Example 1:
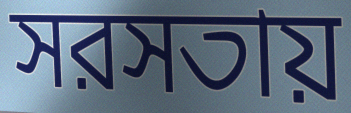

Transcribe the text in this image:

সরসতায়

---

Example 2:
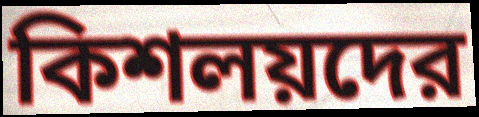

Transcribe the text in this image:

কিশলয়দের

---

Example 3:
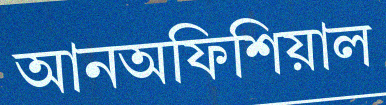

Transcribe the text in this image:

আনঅফিশিয়াল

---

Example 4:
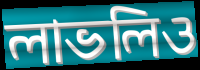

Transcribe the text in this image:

লাভলিও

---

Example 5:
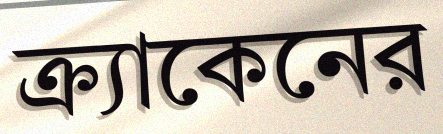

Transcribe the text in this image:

ক্র্যাকেনের